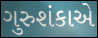
ગુરુશંકાએ